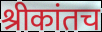
श्रीकांतच